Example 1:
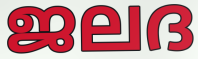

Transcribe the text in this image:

ജലദ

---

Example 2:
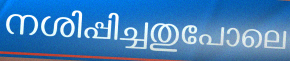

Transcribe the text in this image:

നശിപ്പിച്ചതുപോലെ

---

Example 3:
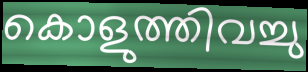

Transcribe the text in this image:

കൊളുത്തിവച്ചു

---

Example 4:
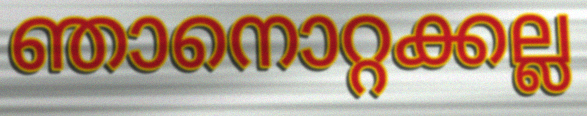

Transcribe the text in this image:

ഞാനൊറ്റക്കല്ല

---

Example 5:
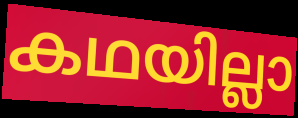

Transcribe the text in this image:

കഥയില്ലാ